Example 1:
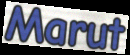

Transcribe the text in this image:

Marut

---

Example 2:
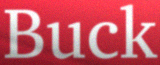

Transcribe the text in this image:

Buck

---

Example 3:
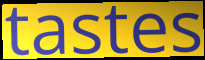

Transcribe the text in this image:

tastes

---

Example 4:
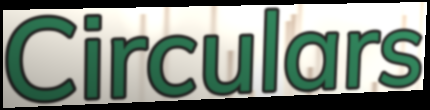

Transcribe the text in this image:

Circulars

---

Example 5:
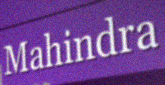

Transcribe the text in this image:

Mahindra